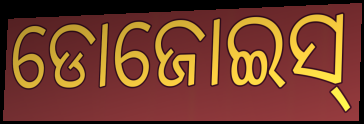
ଡୋଜୋଇସ୍